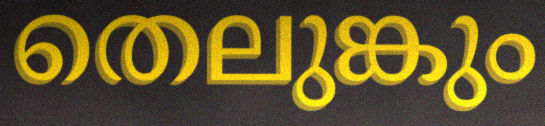
തെലുങ്കും